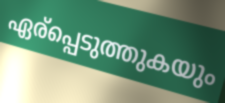
ഏര്പ്പെടുത്തുകയും